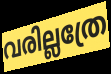
വരില്ലത്രേ